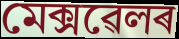
মেক্সৱেলৰ